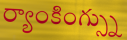
ర్యాంకింగ్స్ను